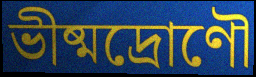
ভীষ্মদ্রোণৌ